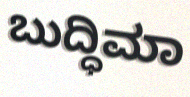
ಬುದ್ಧಿಮಾ